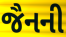
જૈનની